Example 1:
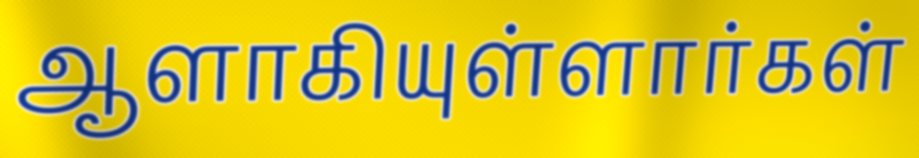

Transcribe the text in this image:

ஆளாகியுள்ளார்கள்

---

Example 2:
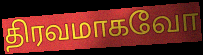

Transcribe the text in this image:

திரவமாகவோ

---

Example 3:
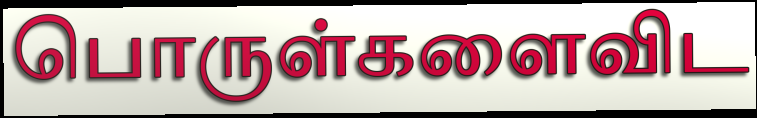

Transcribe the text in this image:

பொருள்களைவிட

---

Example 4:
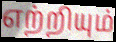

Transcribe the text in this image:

எற்றியும்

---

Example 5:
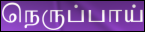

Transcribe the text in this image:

நெருப்பாய்